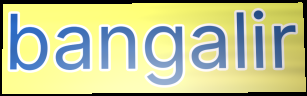
bangalir